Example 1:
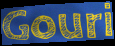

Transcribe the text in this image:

Gouri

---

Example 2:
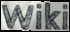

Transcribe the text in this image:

Wiki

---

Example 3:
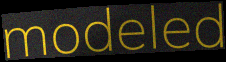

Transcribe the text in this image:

modeled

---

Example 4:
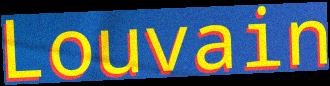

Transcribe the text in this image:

Louvain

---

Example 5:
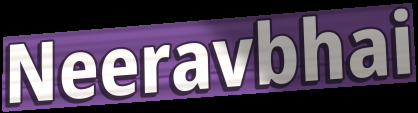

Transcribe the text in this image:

Neeravbhai